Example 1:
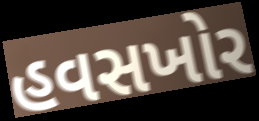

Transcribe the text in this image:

હવસખોર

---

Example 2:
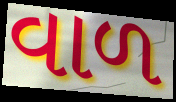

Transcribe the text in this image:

વાળ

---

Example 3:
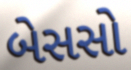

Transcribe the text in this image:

બેસસો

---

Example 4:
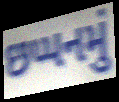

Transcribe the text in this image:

છપ્પનમું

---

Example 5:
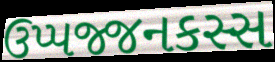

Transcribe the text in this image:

ઉપ્પજ્જનકસ્સ